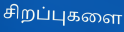
சிறப்புகளை